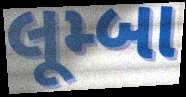
લૂમ્બા